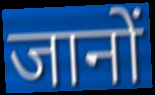
जानों